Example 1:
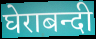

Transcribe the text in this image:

घेराबन्दी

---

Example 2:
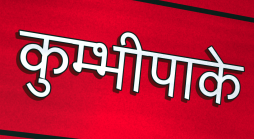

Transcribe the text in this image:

कुम्भीपाके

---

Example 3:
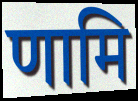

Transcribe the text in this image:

णामि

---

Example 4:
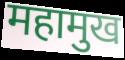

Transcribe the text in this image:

महामुख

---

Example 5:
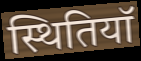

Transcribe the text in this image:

स्थितियॉ